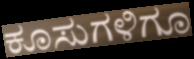
ಕೂಸುಗಳಿಗೂ